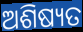
ଅଶିଷ୍ଯତ